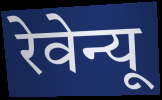
रेवेन्यू